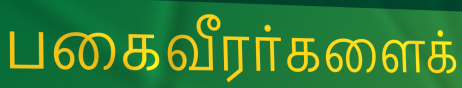
பகைவீரர்களைக்